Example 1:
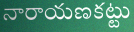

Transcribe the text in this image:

నారాయణకట్టు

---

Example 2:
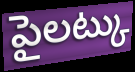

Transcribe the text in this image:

పైలట్కు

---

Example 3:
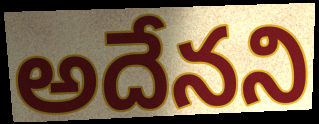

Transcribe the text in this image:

అదేనని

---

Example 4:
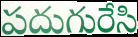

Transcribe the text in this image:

పదుగురేసి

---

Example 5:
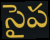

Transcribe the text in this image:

సైప